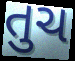
તુચ